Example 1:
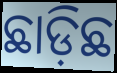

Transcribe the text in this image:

ଛାଡ଼ିଛ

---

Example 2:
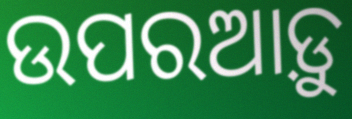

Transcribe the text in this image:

ଉପରଆଡ଼ୁ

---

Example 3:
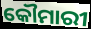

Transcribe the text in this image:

କୌମାରୀ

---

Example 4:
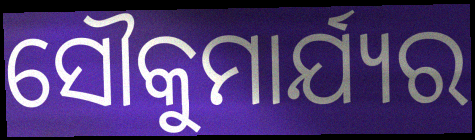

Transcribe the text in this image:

ସୌକୁମାର୍ଯ୍ୟର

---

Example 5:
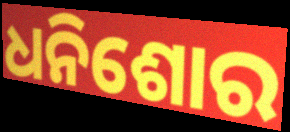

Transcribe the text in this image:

ଧନିଶୋର